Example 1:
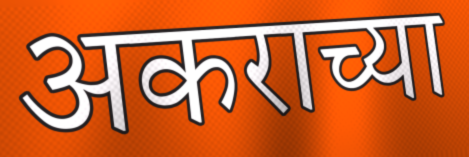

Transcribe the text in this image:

अकराच्या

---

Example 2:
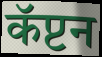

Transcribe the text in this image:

कॅप्टन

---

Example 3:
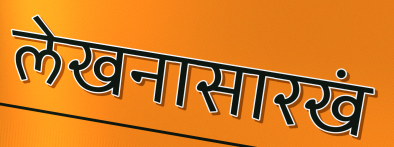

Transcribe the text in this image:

लेखनासारखं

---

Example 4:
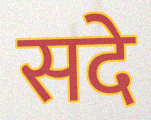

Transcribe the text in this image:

सदे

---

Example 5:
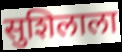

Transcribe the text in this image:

सुशिलाला